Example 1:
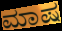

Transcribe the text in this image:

ಮಾಷ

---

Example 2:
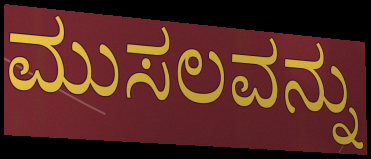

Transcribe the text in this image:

ಮುಸಲವನ್ನು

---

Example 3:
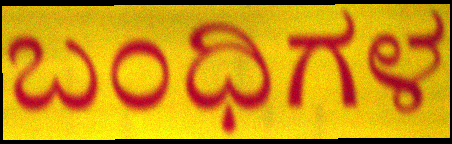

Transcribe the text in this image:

ಬಂಧಿಗಳ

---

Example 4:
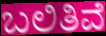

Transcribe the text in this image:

ಬಲಿತಿವೆ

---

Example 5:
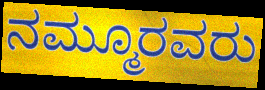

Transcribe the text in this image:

ನಮ್ಮೂರವರು